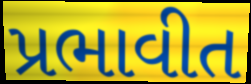
પ્રભાવીત